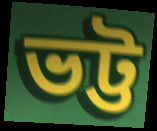
ভট্ট